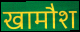
खामौश